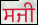
ਸਜੀ